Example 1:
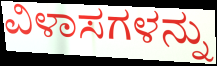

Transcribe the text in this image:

ವಿಳಾಸಗಳನ್ನು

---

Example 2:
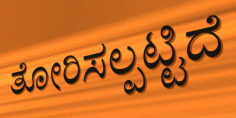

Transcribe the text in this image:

ತೋರಿಸಲ್ಪಟ್ಟಿದೆ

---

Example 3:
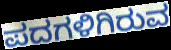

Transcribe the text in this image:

ಪದಗಳಿಗಿರುವ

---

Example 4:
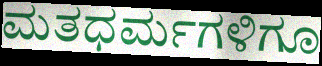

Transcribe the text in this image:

ಮತಧರ್ಮಗಳಿಗೂ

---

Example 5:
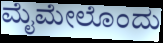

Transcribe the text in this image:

ಮೈಮೇಲೊಂದು